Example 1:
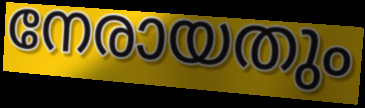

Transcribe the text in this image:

നേരായതും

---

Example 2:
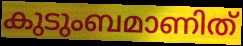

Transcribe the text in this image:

കുടുംബമാണിത്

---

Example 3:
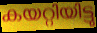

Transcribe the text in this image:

കയറ്റിയിട്ടു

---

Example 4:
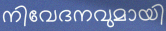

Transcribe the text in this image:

നിവേദനവുമായി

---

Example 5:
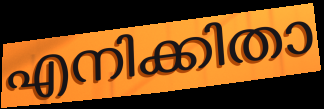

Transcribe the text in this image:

എനിക്കിതാ